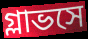
গ্লাভসে